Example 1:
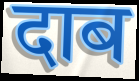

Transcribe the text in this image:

दाब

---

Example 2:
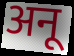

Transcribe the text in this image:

अनू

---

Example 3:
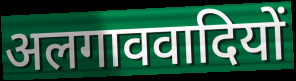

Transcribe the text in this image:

अलगाववादियों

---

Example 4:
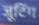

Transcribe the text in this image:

जूटिंग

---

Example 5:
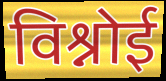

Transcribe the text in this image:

विश्नोई